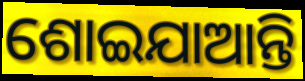
ଶୋଇଯାଆନ୍ତି